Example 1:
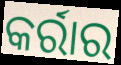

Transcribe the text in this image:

କର୍ରାର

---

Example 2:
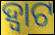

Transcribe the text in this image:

ହ୍ଵାଟ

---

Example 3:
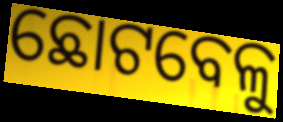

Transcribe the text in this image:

ଛୋଟବେଳୁ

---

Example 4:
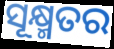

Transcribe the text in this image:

ସୂକ୍ଷ୍ମତର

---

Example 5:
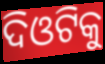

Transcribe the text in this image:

ଦିଓଟିକୁ